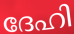
ദേഹി